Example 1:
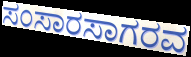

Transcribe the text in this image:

ಸಂಸಾರಸಾಗರವ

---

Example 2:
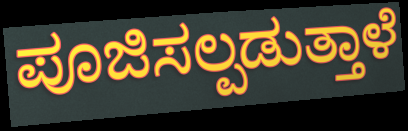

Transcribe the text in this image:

ಪೂಜಿಸಲ್ಪಡುತ್ತಾಳೆ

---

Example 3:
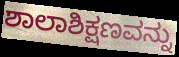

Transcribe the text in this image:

ಶಾಲಾಶಿಕ್ಷಣವನ್ನು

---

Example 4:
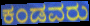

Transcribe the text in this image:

ಕಂಡವರು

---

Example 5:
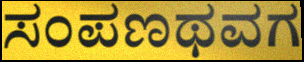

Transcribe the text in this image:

ಸಂಪಣಥವಗ